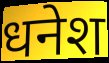
धनेश